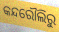
କନ୍ଦରୌଲିରୁ